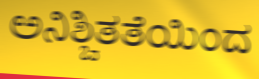
ಅನಿಶ್ಚಿತತೆಯಿಂದ